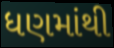
ધણમાંથી